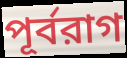
পূর্বরাগ